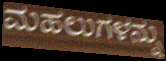
ಮಹಲುಗಳನ್ನು